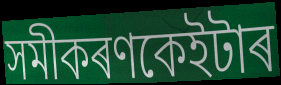
সমীকৰণকেইটাৰ